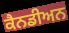
ਕੈਨਡੀਅਨ